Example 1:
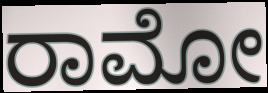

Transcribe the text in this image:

ರಾಮೋ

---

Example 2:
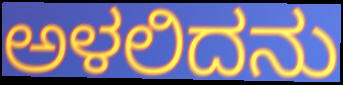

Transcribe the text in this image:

ಅಳಲಿದನು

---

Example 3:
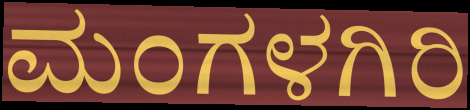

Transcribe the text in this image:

ಮಂಗಳಗಿರಿ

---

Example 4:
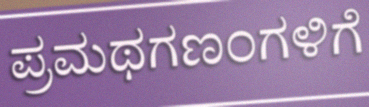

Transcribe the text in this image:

ಪ್ರಮಥಗಣಂಗಳಿಗೆ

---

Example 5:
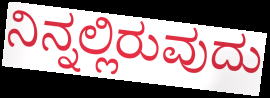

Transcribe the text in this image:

ನಿನ್ನಲ್ಲಿರುವುದು